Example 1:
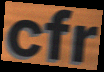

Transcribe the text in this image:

cfr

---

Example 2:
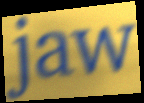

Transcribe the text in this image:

jaw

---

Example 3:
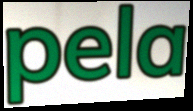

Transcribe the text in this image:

pela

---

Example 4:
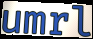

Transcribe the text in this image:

umrl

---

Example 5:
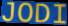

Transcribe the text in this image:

JODI